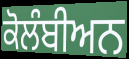
ਕੋਲੰਬੀਅਨ